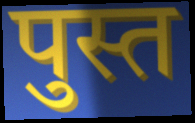
पुस्त